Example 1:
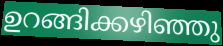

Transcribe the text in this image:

ഉറങ്ങിക്കഴിഞ്ഞു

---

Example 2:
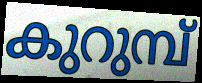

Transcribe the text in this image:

കുറുമ്പ്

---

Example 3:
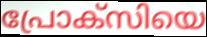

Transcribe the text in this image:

പ്രോക്സിയെ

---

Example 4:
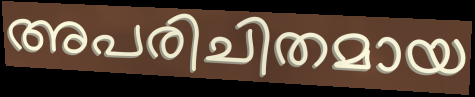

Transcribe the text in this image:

അപരിചിതമായ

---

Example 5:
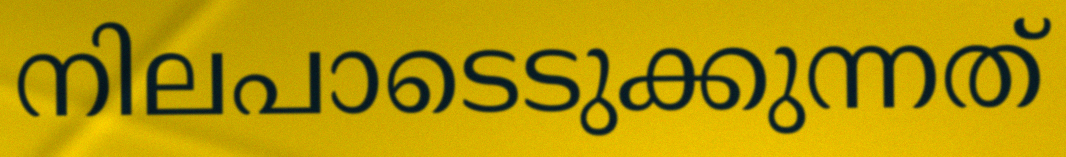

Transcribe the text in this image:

നിലപാടെടുക്കുന്നത്